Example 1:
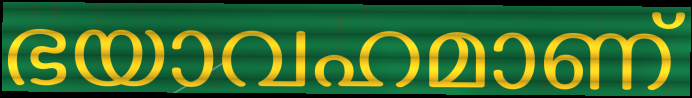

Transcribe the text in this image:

ഭയാവഹമാണ്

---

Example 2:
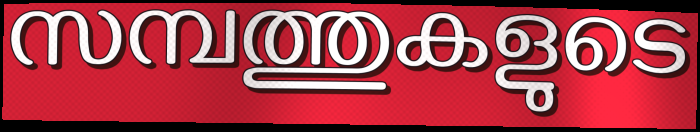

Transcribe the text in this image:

സമ്പത്തുകളുടെ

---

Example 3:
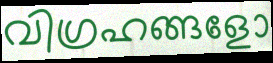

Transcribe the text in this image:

വിഗ്രഹങ്ങളോ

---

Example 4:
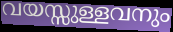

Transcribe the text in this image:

വയസ്സുള്ളവനും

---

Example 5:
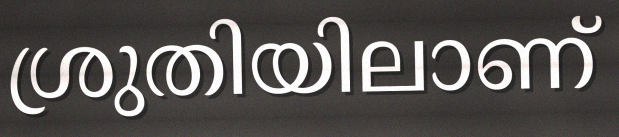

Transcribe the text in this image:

ശ്രുതിയിലാണ്